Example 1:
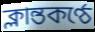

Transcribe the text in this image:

ক্লান্তকণ্ঠে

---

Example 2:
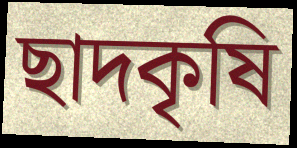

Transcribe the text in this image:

ছাদকৃষি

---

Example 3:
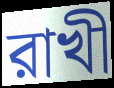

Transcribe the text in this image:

রাখী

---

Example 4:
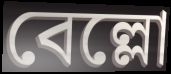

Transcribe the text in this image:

বেল্লো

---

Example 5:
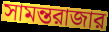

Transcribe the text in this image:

সামন্তরাজার